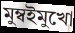
মুম্বইমুখো